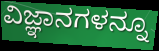
ವಿಜ್ಞಾನಗಳನ್ನೂ